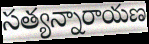
సత్యన్నారాయణ